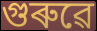
গুৰুৱে